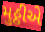
મુઠ્ઠીએ